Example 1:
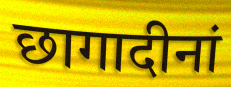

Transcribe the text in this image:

छागादीनां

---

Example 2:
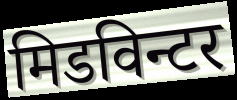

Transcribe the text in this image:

मिडविन्टर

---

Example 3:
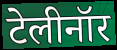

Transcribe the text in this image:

टेलीनॉर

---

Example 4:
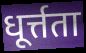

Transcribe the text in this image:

धूर्त्तता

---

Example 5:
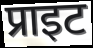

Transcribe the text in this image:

प्राइट